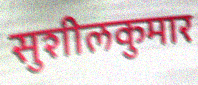
सुशीलकुमार